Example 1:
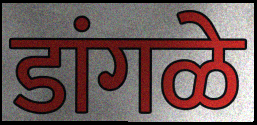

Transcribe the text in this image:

डांगळे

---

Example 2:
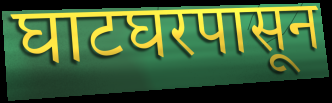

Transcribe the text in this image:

घाटघरपासून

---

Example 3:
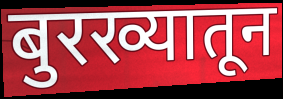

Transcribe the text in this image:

बुरख्यातून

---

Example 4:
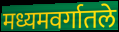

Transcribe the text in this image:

मध्यमवर्गातले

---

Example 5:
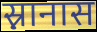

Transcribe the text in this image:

स्नानास